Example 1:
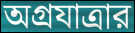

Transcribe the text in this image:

অগ্রযাত্রার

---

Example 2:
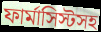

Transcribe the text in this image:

ফার্মাসিস্টসহ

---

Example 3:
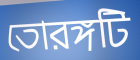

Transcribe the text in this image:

তোরঙ্গটি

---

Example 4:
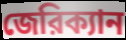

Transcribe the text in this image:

জেরিক্যান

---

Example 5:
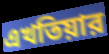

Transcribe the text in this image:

এখতিয়ার